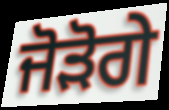
ਜੋੜੋਗੇ